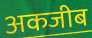
अकजीब